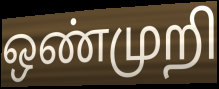
ஒண்முறி